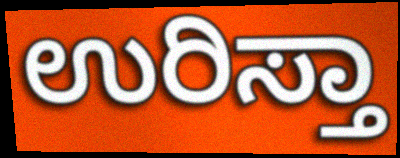
ಉರಿಸ್ತಾ